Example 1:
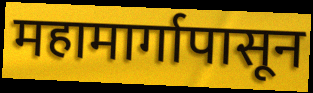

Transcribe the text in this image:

महामार्गापासून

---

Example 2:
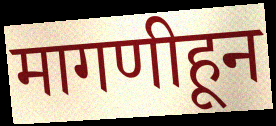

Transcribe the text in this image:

मागणीहून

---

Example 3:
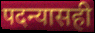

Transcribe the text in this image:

पदन्यासही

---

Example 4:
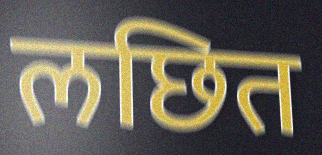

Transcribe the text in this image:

लछित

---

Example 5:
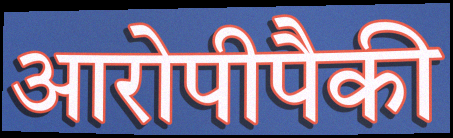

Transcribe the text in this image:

आरोपीपैकी